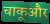
चाकूऔर